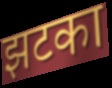
झटका